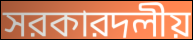
সরকারদলীয়